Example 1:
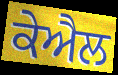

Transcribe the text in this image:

ਕੇਐਲ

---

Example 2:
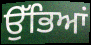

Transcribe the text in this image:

ਉੱਭਿਆਂ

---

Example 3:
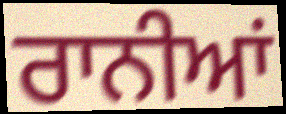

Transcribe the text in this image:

ਰਾਨੀਆਂ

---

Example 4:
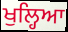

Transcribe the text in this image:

ਖੁਲ੍ਹਿਆ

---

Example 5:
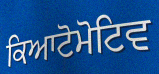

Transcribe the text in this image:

ਕਿਆਟੋਮੋਟਿਵ